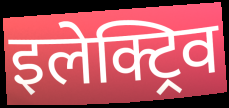
इलेक्ट्रिव